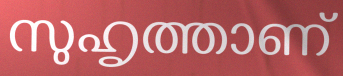
സുഹൃത്താണ്